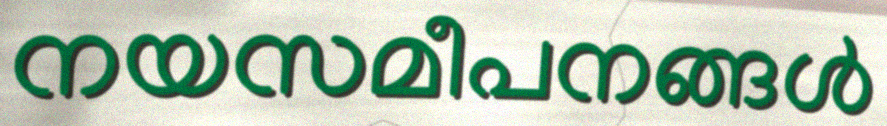
നയസമീപനങ്ങൾ